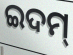
ଇଦମ୍